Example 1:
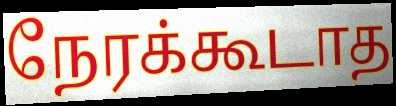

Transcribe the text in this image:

நேரக்கூடாத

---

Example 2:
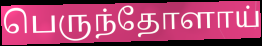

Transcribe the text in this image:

பெருந்தோளாய்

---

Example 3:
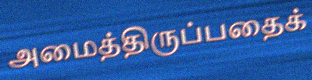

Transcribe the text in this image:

அமைத்திருப்பதைக்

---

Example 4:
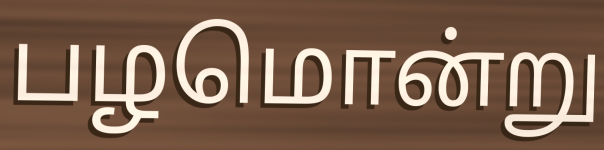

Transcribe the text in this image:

பழமொன்று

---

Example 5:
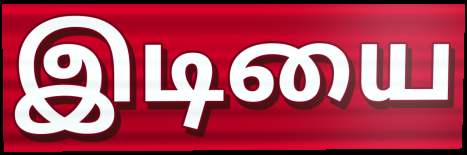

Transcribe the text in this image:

இடியை